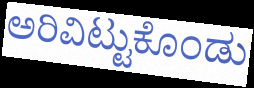
ಅರಿವಿಟ್ಟುಕೊಂಡು